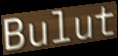
Bulut